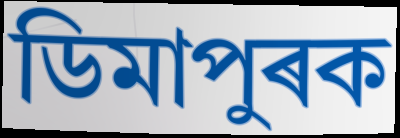
ডিমাপুৰক